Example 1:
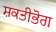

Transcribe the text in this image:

ਸ਼ਕਤੀਭੋਗ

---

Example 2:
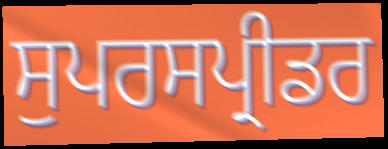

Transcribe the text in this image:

ਸੁਪਰਸਪ੍ਰੀਡਰ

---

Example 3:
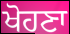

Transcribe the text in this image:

ਖੋਹਣਾ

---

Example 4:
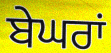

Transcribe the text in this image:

ਬੇਘਰਾਂ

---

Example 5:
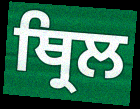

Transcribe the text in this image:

ਥ੍ਰਿਲ